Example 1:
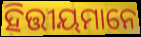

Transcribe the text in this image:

ହିତ୍ତୀୟମାନେ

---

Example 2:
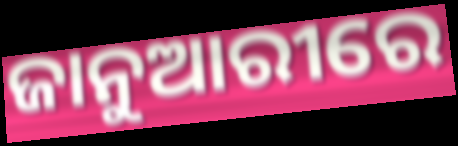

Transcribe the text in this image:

ଜାନୁଆରୀରେ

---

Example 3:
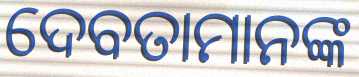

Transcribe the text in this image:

ଦେବତାମାନଙ୍କ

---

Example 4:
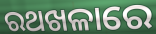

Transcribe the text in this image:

ରଥଖଳାରେ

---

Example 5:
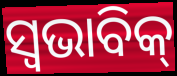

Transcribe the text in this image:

ସ୍ୱଭାବିକ୍